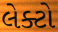
લેક્ટો